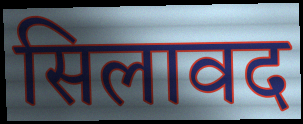
सिलावद